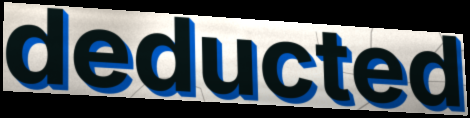
deducted